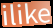
ilike